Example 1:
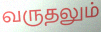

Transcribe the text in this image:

வருதலும்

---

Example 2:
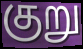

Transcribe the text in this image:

குறு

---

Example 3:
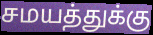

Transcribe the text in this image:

சமயத்துக்கு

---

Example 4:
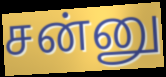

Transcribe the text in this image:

சன்னு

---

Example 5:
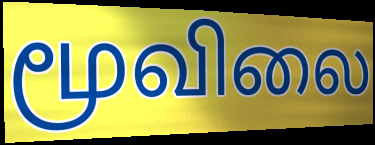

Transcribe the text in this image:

மூவிலை